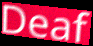
Deaf